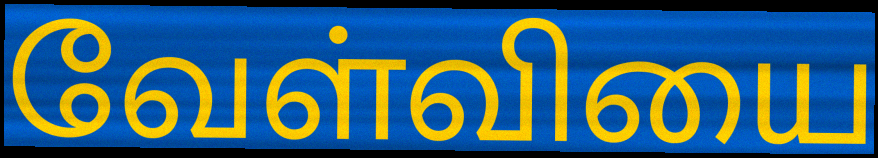
வேள்வியை